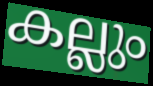
കല്ലും